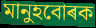
মানুহবোৰক